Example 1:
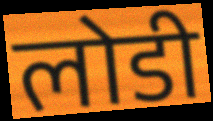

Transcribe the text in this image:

लोडी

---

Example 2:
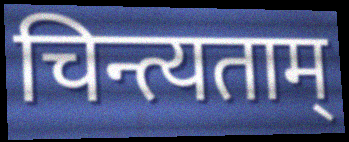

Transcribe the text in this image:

चिन्त्यताम्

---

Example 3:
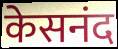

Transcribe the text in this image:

केसनंद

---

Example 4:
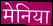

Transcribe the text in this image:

मेनिया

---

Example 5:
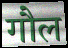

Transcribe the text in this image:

गौल